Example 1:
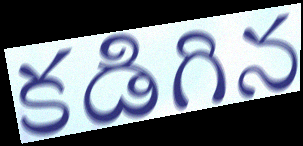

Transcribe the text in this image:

కడిగిన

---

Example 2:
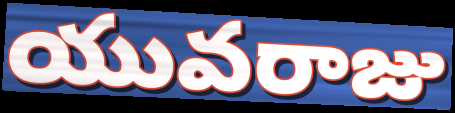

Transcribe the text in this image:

యువరాజు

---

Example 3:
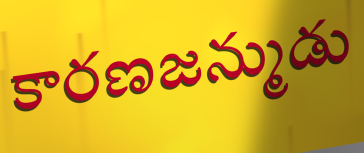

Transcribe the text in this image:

కారణజన్ముడు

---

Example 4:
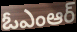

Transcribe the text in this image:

ఓఎంఆర్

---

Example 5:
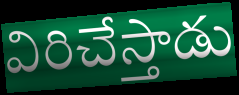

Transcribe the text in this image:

విరిచేస్తాడు